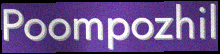
Poompozhil